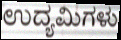
ಉದ್ಯಮಿಗಳು